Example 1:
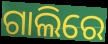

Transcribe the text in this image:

ଗାଲିରେ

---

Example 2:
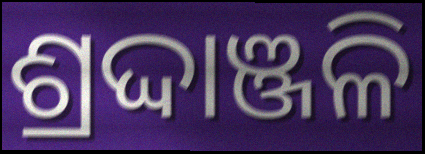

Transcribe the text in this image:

ଶ୍ରଦ୍ଦାଞ୍ଜଳି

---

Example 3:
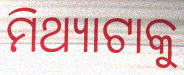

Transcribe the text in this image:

ମିଥ୍ୟାଟାକୁ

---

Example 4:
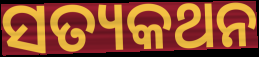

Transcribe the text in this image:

ସତ୍ୟକଥନ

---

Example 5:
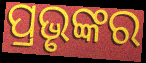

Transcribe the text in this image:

ପ୍ରଭୃଙ୍କର